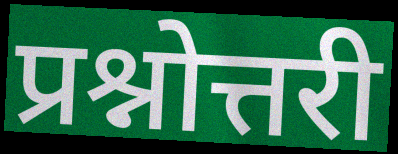
प्रश्नोत्तरी